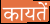
कायतें